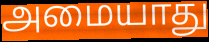
அமையாது